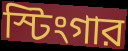
স্টিংগার